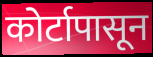
कोर्टापासून